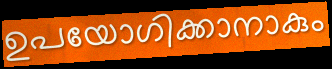
ഉപയോഗിക്കാനാകും